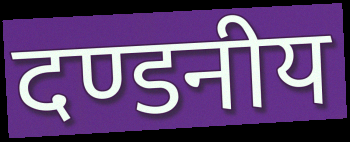
दण्डनीय